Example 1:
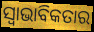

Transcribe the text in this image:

ସ୍ଵାଭାବିକତାର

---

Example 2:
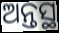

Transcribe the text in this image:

ଅନ୍ତସ୍ଥ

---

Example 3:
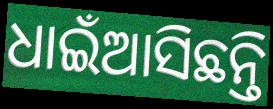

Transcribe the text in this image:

ଧାଇଁଆସିଛନ୍ତି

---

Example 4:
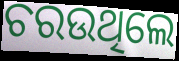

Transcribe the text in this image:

ଚରଉଥିଲେ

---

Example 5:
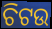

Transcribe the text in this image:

ଚିଟଉ